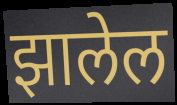
झालेल